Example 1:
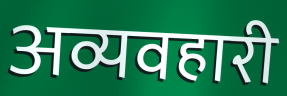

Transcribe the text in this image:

अव्यवहारी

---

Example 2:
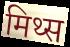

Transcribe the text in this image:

मिथ्स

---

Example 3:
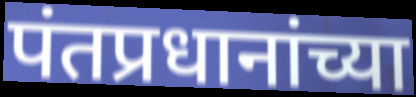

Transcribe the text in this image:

पंतप्रधानांच्या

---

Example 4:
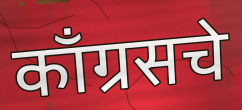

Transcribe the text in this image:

काँग्रसचे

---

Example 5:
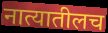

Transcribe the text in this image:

नात्यातीलच